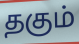
தகும்